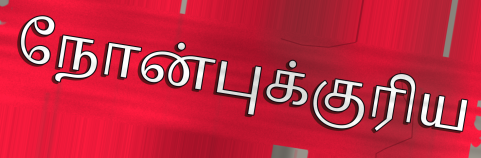
நோன்புக்குரிய